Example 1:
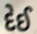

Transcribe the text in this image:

દેઈ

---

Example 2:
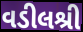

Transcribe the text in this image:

વડીલશ્રી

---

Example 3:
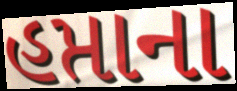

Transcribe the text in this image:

હપ્તાના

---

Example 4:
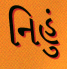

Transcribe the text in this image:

નિહું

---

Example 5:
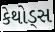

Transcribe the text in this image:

કેથોડ્સ